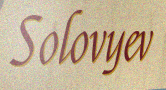
Solovyev